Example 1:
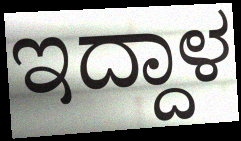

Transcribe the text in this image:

ಇದ್ದಾಳ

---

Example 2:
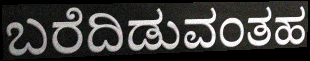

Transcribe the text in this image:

ಬರೆದಿಡುವಂತಹ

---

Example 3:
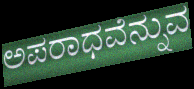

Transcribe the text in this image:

ಅಪರಾಧವೆನ್ನುವ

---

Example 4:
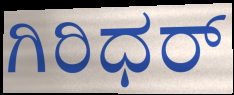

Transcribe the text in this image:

ಗಿರಿಧರ್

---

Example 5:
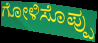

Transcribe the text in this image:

ಗೋಳಿಸೊಪ್ಪು